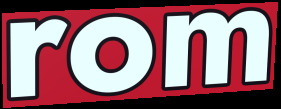
rom